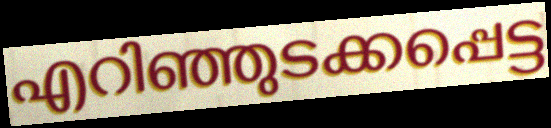
എറിഞ്ഞുടക്കപ്പെട്ട